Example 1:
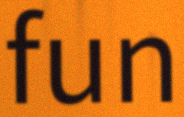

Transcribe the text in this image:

fun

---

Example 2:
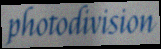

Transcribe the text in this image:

photodivision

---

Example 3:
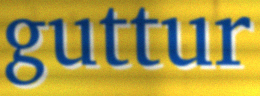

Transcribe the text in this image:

guttur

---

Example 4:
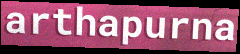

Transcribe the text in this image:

arthapurna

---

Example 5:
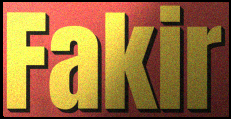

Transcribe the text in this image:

Fakir